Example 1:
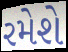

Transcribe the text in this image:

રમેશે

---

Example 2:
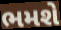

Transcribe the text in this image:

ભમશે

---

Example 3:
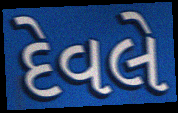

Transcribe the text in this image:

દેવલે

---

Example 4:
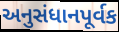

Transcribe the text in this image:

અનુસંધાનપૂર્વક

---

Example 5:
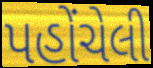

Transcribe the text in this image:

પહોંચેલી